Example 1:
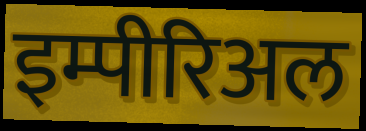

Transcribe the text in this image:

इम्पीरिअल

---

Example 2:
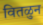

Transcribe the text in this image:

वितळुन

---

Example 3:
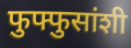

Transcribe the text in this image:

फुफ्फुसांशी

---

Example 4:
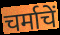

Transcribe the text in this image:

चर्माचें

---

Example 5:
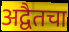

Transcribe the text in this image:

अद्वैतचा